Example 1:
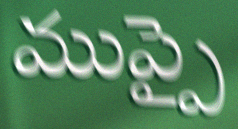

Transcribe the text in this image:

ముప్పై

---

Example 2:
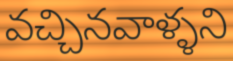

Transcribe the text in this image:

వచ్చినవాళ్ళని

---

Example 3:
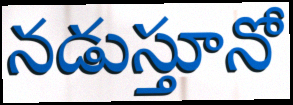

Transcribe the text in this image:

నడుస్తూనో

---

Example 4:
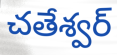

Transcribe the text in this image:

చతేశ్వర్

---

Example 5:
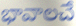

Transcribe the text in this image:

భావాలచే